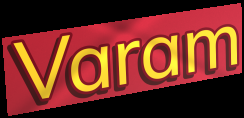
Varam